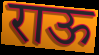
राऊ